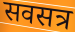
सवसत्र